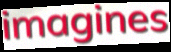
imagines